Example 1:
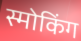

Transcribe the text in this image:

स्मोकिंग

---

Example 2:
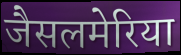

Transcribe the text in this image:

जैसलमेरिया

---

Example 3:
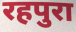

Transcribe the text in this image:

रहपुरा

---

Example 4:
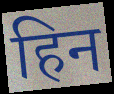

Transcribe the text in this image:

हिन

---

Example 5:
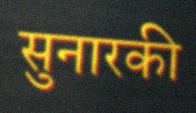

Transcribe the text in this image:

सुनारकी